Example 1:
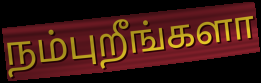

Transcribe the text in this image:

நம்புறீங்களா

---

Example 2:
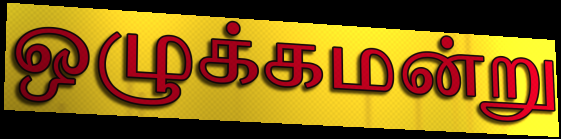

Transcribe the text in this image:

ஒழுக்கமன்று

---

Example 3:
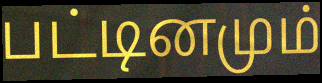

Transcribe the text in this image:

பட்டினமும்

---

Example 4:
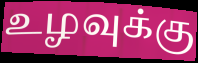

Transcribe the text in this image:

உழவுக்கு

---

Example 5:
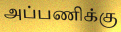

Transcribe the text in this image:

அப்பணிக்கு